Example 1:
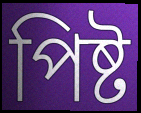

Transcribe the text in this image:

পিষ্ট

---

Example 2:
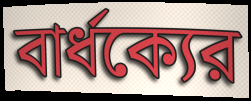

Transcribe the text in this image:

বার্ধক্যের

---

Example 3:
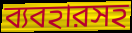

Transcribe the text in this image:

ব্যবহারসহ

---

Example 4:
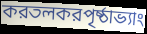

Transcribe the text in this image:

করতলকরপৃষ্ঠাভ্যাং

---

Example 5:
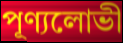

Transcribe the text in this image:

পূণ্যলোভী